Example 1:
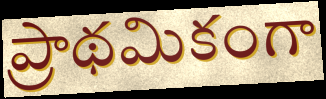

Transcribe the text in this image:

ప్రాథమికంగా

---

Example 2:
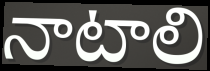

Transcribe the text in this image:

నాటాలి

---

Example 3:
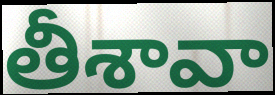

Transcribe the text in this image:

తీశావా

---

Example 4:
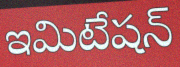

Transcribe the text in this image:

ఇమిటేషన్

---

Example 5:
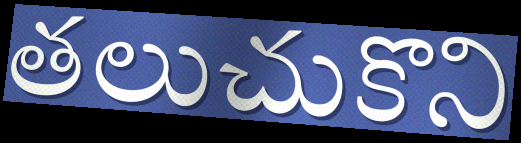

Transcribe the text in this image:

తలుచుకొని